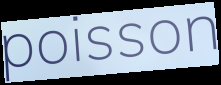
poisson